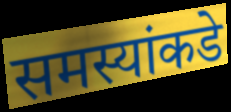
समस्यांकडे